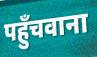
पहुँचवाना